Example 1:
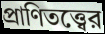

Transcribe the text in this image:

প্রাণিতত্ত্বের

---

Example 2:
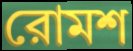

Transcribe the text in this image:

রোমশ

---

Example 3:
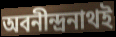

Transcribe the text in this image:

অবনীন্দ্রনাথই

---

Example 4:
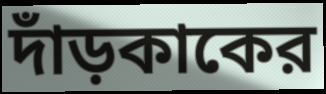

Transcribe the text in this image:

দাঁড়কাকের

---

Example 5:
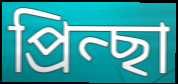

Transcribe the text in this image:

প্রিন্ছা